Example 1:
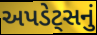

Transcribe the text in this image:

અપડેટ્સનું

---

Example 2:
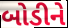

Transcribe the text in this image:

બોડીને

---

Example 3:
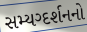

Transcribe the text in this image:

સમ્યગ્દર્શનનો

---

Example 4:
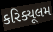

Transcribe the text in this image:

કરિક્યૂલમ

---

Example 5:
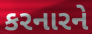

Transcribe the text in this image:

કરનારને